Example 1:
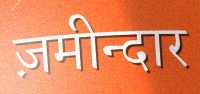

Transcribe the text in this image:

ज़मीन्दार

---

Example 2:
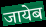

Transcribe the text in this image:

जायेब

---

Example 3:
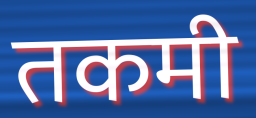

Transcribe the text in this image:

तकमी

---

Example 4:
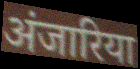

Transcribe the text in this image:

अंजारिया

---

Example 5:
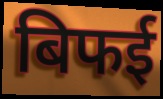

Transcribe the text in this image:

बिफई